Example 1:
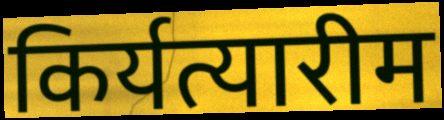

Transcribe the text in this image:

किर्यत्यारीम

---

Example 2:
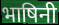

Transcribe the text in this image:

भाषिनी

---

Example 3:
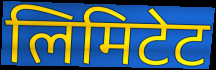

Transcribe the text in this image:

लिमिटेट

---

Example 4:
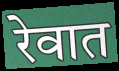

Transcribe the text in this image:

रेवात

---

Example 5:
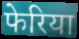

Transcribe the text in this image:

फेरिया